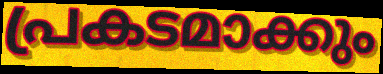
പ്രകടമാക്കും